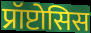
प्रॉप्टोसिस